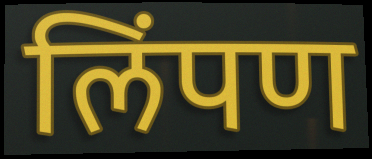
लिंपण